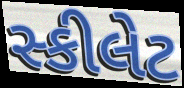
સ્કીલેટ